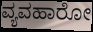
ವ್ಯವಹಾರೋ